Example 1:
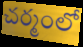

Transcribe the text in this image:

చర్మంలో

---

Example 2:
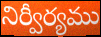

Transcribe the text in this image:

నిర్వీర్యము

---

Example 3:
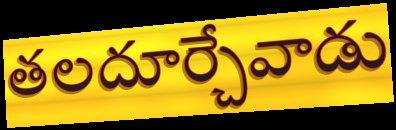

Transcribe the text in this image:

తలదూర్చేవాడు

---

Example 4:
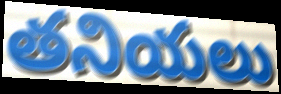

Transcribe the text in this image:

తనియలు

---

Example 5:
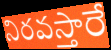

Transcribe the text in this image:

నిరవస్తారే